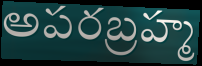
అపరబ్రహ్మ